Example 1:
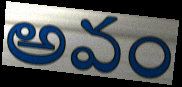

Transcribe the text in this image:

అవం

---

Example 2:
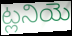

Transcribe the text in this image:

ట్లనియె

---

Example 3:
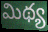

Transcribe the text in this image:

మిథ్య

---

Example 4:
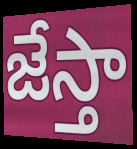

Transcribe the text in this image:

జేస్తా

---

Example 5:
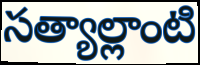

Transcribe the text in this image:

సత్యాల్లాంటి